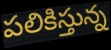
పలికిస్తున్న